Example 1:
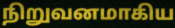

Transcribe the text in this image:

நிறுவனமாகிய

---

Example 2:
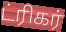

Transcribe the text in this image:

ட்ரிகர்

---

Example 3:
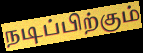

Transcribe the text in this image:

நடிப்பிற்கும்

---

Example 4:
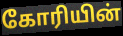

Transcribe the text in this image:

கோரியின்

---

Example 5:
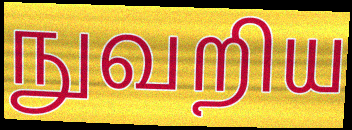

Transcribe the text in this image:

நுவறிய